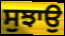
ਸੁਝਾਉ